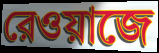
রেওয়াজে